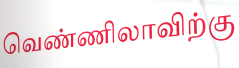
வெண்ணிலாவிற்கு